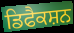
ਡਿਫੈਕਸ਼ਨ